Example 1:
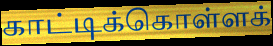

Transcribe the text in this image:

காட்டிக்கொள்ளக்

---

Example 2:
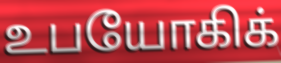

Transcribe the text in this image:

உபயோகிக்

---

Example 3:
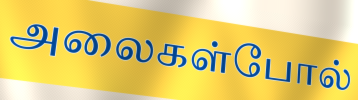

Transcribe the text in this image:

அலைகள்போல்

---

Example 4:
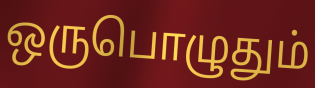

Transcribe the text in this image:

ஒருபொழுதும்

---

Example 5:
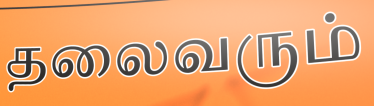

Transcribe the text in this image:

தலைவரும்